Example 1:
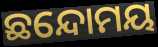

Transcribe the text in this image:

ଛନ୍ଦୋମୟ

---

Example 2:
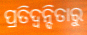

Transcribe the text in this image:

ପ୍ରତିଦ୍ୱନ୍ଦିତାରୁ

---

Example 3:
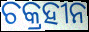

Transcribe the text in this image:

ଚକ୍ରହୀନ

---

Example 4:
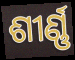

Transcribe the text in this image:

ଶୀର୍ଣ୍ଣ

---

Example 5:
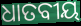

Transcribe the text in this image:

ଧାତବୀୟ